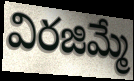
విరజిమ్మే